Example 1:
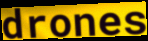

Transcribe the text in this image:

drones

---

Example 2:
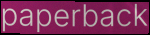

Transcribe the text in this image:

paperback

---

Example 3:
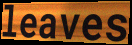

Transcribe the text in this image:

leaves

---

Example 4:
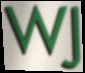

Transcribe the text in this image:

WJ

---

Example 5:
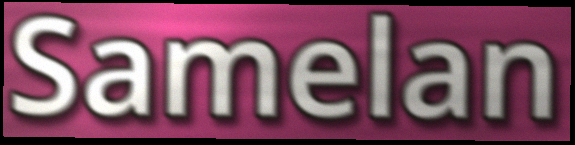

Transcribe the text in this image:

Samelan